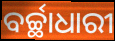
ବର୍ଚ୍ଛାଧାରୀ